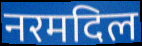
नरमदिल